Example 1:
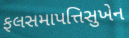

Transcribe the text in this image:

ફલસમાપત્તિસુખેન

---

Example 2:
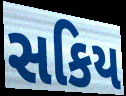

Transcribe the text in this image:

સકિય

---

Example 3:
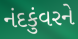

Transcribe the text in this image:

નંદકુંવરને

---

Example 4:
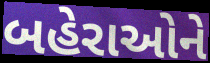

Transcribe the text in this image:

બહેરાઓને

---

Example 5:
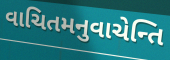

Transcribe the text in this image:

વાચિતમનુવાચેન્તિ